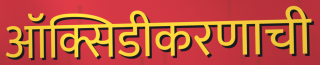
ऑक्सिडीकरणाची